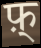
फ़्